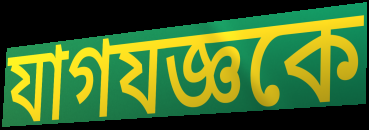
যাগযজ্ঞকে